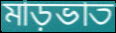
মাড়ভাত